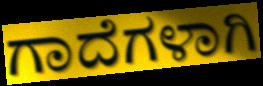
ಗಾದೆಗಳಾಗಿ